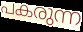
പകരുന്ന